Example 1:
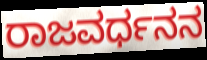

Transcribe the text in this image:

ರಾಜವರ್ಧನನ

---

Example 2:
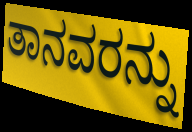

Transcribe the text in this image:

ತಾನವರನ್ನು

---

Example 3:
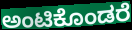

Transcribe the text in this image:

ಅಂಟಿಕೊಂಡರೆ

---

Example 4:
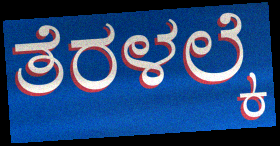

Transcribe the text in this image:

ತೆರಳಲ್ಕೆ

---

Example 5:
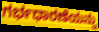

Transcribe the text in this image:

ಗರ್ಭಧಾರಣೆಯನ್ನು